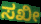
ಸಖೀ